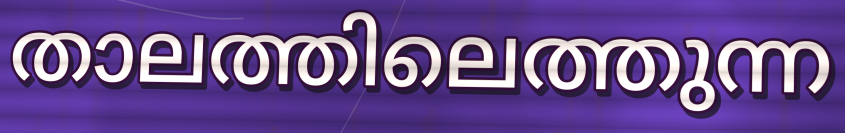
താലത്തിലെത്തുന്ന